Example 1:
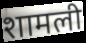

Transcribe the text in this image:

शामली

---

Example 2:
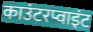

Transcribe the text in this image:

काउंटरप्वाइंट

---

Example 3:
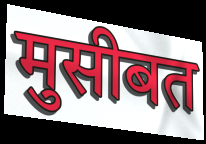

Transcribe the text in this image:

मुसीबत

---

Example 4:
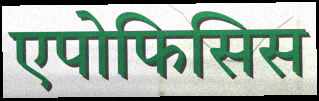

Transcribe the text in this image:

एपोफिसिस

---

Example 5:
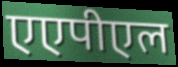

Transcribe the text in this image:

एएपीएल